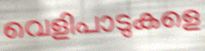
വെളിപാടുകളെ